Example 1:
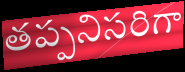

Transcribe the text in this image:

తప్పనిసరిగా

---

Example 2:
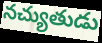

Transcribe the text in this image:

నచ్యుతుడు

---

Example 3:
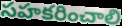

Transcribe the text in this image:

సహకరించాలి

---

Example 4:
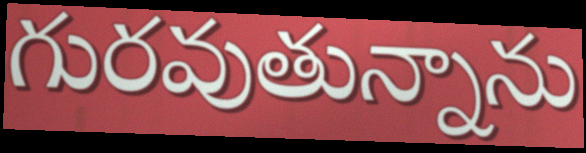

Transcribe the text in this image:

గురవుతున్నాను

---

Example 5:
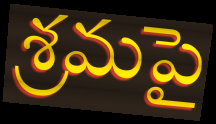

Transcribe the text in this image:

శ్రమపై